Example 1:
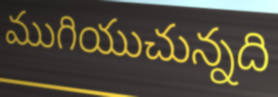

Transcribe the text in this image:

ముగియుచున్నది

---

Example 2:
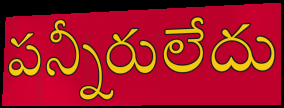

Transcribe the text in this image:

పన్నీరులేదు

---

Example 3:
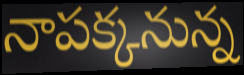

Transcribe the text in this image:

నాపక్కనున్న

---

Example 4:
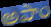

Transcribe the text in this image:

అపాం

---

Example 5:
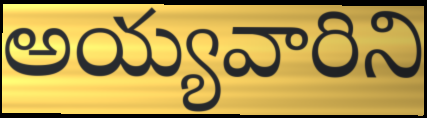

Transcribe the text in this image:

అయ్యవారిని